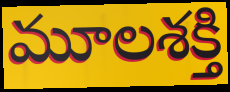
మూలశక్తి